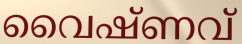
വൈഷ്ണവ്